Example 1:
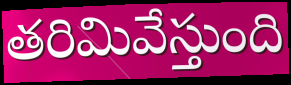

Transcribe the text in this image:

తరిమివేస్తుంది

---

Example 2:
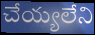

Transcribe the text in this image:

చేయ్యలేని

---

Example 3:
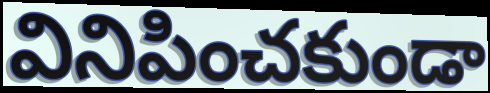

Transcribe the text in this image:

వినిపించకుండా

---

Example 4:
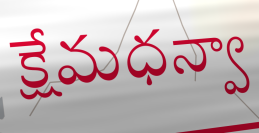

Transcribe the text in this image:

క్షేమధన్వా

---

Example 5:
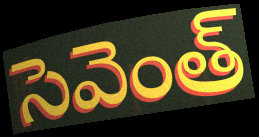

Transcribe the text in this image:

సెవెంత్